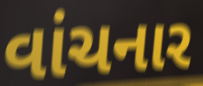
વાંચનાર